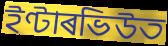
ইণ্টাৰভিউত